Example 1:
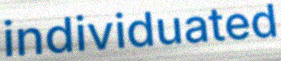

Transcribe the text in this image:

individuated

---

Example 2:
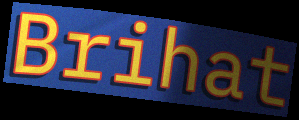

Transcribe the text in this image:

Brihat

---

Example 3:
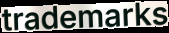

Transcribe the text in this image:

trademarks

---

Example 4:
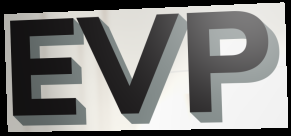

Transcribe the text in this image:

EVP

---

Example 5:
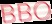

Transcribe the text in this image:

BBO